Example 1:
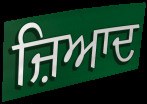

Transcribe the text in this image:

ਜ਼ਿਆਦ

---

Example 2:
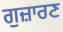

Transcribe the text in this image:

ਗੁਜ਼ਾਰਣ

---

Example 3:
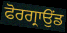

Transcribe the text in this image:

ਫੋਰਗ੍ਰਾਉਂਡ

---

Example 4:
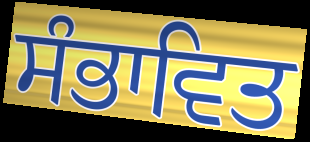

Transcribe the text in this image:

ਸੰਭਾਵਿਤ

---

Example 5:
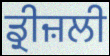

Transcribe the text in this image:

ਡ੍ਰੀਜ਼ਲੀ